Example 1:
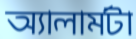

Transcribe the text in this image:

অ্যালার্মটা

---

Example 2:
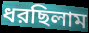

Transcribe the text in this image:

ধরছিলাম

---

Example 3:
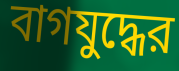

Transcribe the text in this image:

বাগযুদ্ধের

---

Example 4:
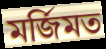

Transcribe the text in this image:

মর্জিমত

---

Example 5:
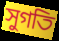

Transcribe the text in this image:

সুগতি